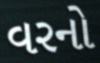
વરનો